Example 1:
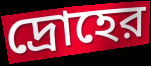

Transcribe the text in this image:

দ্রোহের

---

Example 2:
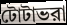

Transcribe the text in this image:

টোটাভরা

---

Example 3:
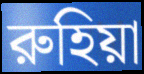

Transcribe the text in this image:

রুহিয়া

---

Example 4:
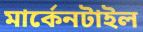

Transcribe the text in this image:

মার্কেনটাইল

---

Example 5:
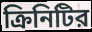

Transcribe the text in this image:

ক্রিনিটির